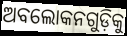
ଅବଲୋକନଗୁଡ଼ିକୁ